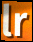
lr